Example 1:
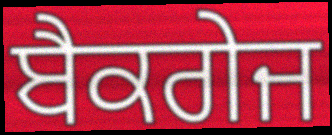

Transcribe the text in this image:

ਬੈਕਗੇਜ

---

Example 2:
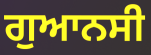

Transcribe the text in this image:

ਗੁਆਨਸੀ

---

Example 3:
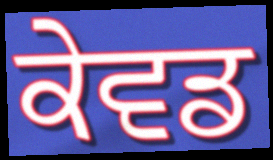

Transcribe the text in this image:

ਕੇਵਡ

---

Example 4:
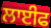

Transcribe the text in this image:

ਲਾਈਫ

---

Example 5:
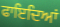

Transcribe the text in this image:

ਫਾਇਦਿਆਂ